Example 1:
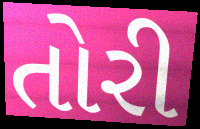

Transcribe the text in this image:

તોરી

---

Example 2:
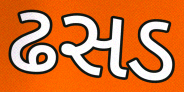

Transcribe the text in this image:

ઢસડ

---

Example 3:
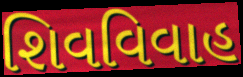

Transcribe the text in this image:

શિવવિવાહ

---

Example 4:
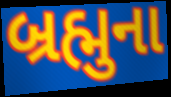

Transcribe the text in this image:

બ્રહ્મુના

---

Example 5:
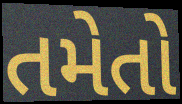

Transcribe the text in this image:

તમેતો